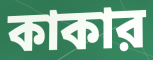
কাকার